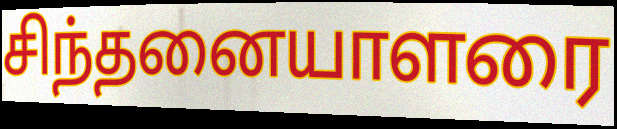
சிந்தனையாளரை